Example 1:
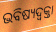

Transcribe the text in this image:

ଭବିଷ୍ୟଦ୍ବକ୍ତା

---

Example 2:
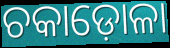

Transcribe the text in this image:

ଚକାଡ଼ୋଳା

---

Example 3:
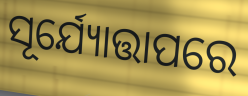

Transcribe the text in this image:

ସୂର୍ଯ୍ୟୋତ୍ତାପରେ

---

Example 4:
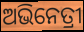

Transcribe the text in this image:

ଅଭିନେତ୍ରୀ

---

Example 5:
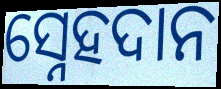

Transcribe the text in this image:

ସ୍ନେହଦାନ